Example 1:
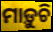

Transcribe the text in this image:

ମାଡ଼ୁଚି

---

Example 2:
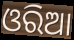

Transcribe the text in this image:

ଓରିଆ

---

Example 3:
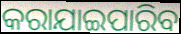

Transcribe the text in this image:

କରାଯାଇପାରିବ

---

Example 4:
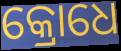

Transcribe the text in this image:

କ୍ରୋଧେ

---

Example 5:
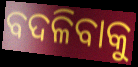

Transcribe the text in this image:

ବଦଳିବାକୁ